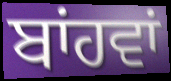
ਬਾਂਹਵਾਂ